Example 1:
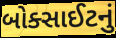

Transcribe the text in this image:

બોક્સાઈટનું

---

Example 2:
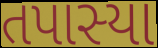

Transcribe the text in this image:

તપાસ્યા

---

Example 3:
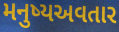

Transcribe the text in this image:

મનુષ્યઅવતાર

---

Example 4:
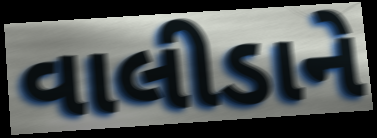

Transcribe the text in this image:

વાલીડાને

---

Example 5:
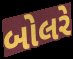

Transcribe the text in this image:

બોલરે